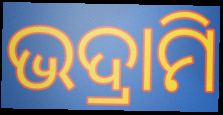
ଭଦ୍ରାମି